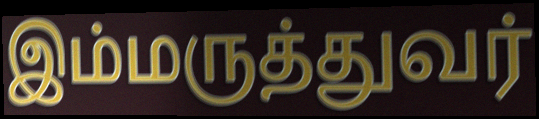
இம்மருத்துவர்